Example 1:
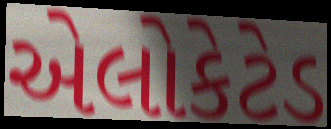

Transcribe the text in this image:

એલોકેટેડ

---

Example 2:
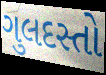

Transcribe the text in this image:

ગુલદસ્તો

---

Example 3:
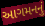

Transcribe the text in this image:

આગમનનું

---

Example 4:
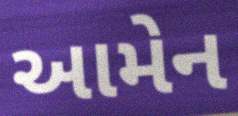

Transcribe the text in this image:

આમેન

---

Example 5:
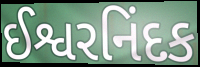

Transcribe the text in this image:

ઈશ્વરનિંદક